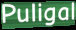
Puligal